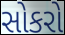
સોકરો